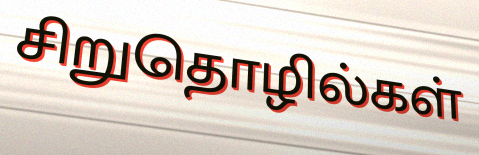
சிறுதொழில்கள்